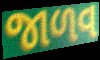
જાળવ